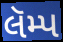
લૅમ્પ